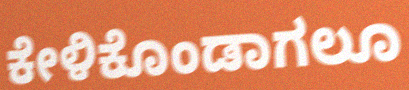
ಕೇಳಿಕೊಂಡಾಗಲೂ